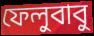
ফেলুবাবু